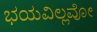
ಭಯವಿಲ್ಲವೋ